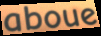
aboue